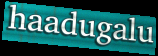
haadugalu